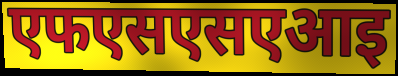
एफएसएसएआइ